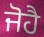
ਜੋਹੈ